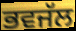
ਭਵਜੱਲ